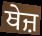
ਥੇਜ਼